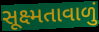
સૂક્ષ્મતાવાળું